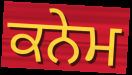
ਕਨੇਮ